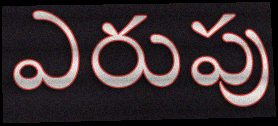
ఎరుపు